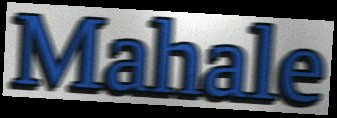
Mahale